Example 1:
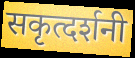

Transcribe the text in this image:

सकृत्दर्शनी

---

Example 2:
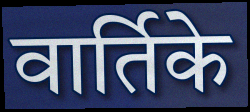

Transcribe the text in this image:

वार्तिके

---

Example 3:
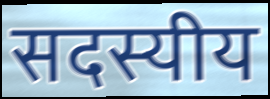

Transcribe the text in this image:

सदस्यीय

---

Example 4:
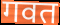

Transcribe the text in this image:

गवत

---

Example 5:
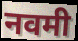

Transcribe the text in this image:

नवमी